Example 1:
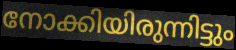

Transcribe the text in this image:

നോക്കിയിരുന്നിട്ടും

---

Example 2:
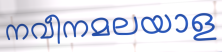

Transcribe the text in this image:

നവീനമലയാള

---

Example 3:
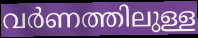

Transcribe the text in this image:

വർണത്തിലുള്ള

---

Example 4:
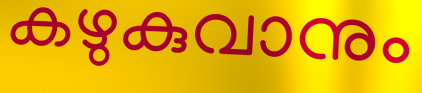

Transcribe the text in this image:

കഴുകുവാനും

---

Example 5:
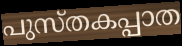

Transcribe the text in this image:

പുസ്തകപ്പാത